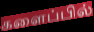
களைப்பில்